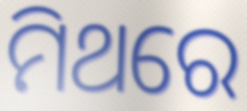
ମିଥରେ